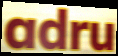
adru